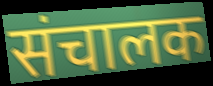
संचालक